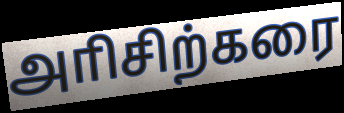
அரிசிற்கரை